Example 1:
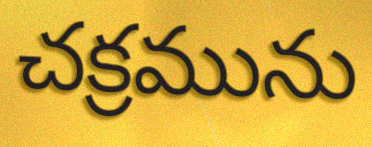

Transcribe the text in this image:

చక్రమును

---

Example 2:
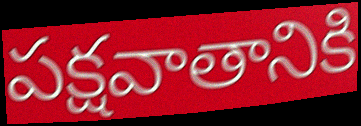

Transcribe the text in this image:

పక్షవాతానికి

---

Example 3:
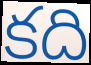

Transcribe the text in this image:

కది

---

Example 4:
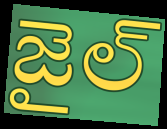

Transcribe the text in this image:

జైల్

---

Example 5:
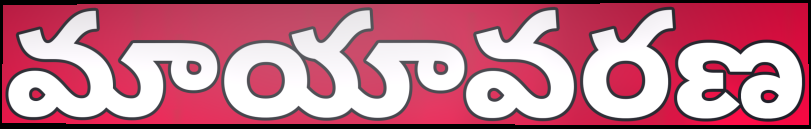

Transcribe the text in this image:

మాయావరణ